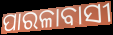
ପାରଳାବାସୀ